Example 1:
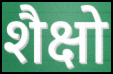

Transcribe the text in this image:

शैक्षो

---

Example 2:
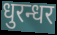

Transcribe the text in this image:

धुरन्धर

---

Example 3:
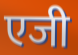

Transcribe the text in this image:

एजी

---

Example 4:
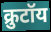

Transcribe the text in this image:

क्रुटॉय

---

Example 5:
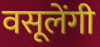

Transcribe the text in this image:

वसूलेंगी